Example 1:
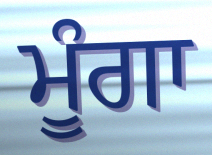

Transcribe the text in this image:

ਮੂੰਗਾ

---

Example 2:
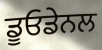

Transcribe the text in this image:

ਡੂਓਡੇਨਲ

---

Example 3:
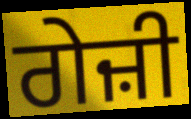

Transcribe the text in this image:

ਗੇਜ਼ੀ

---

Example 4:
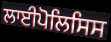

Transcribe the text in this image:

ਲਾਈਪੋਲਿਸਿਸ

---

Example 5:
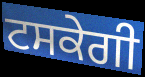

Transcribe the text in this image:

ਟਸਕੇਗੀ